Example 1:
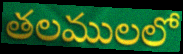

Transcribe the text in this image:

తలములలో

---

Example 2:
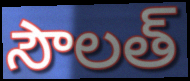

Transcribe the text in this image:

సౌలత్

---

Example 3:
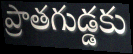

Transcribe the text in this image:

ప్రాతగుడ్డకు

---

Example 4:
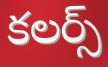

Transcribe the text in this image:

కలర్స్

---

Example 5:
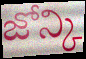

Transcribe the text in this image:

జోన్కి